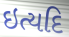
ઇત્યદિ